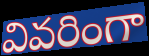
వివరింగా